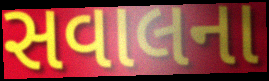
સવાલના